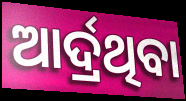
ଆର୍ଦ୍ରଥିବା